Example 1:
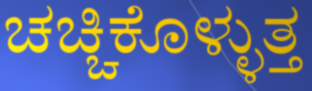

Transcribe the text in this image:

ಚಚ್ಚಿಕೊಳ್ಳುತ್ತ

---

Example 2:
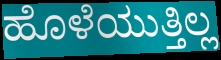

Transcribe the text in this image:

ಹೊಳೆಯುತ್ತಿಲ್ಲ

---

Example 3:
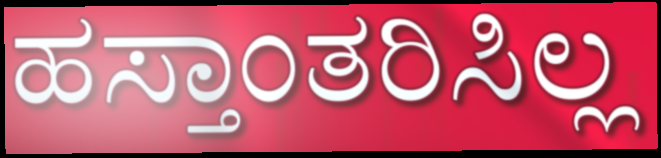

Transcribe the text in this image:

ಹಸ್ತಾಂತರಿಸಿಲ್ಲ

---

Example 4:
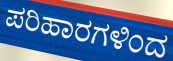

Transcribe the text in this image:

ಪರಿಹಾರಗಳಿಂದ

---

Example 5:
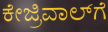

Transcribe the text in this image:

ಕೇಜ್ರಿವಾಲ್‍ಗೆ